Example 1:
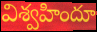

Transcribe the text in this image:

విశ్వహిందూ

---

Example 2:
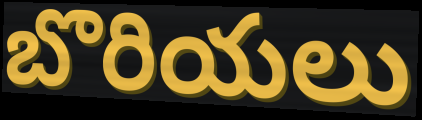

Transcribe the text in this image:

బొరియలు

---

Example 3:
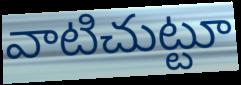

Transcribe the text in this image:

వాటిచుట్టూ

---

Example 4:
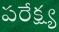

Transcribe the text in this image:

పరేక్ష్య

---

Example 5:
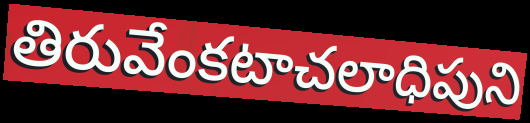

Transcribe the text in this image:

తిరువేంకటాచలాధిపుని